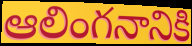
ఆలింగనానికి